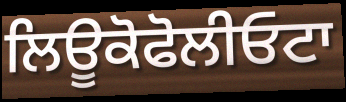
ਲਿਊਕੋਫੋਲੀਓਟਾ